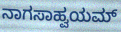
ನಾಗಸಾಹ್ವಯಮ್